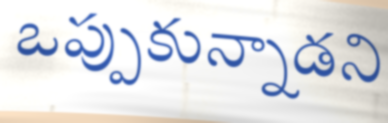
ఒప్పుకున్నాడని